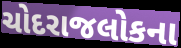
ચોદરાજલોકના